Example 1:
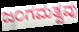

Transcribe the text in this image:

ಜಂಗಮತ್ವವು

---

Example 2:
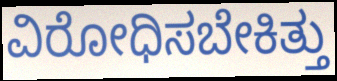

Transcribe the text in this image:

ವಿರೋಧಿಸಬೇಕಿತ್ತು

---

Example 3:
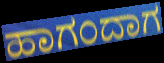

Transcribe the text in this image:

ಹಾಗಂದಾಗ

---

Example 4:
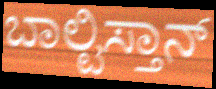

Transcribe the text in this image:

ಬಾಲ್ಟಿಸ್ತಾನ್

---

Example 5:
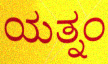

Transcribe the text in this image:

ಯತ್ನಂ